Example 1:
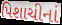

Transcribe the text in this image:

પિશાચીનાં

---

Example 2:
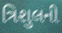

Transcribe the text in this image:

ત્રિશુલની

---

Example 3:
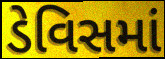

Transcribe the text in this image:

ડેવિસમાં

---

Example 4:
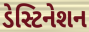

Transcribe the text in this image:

ડેસ્ટિનેશન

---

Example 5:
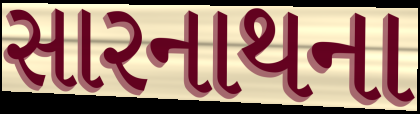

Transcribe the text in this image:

સારનાથના